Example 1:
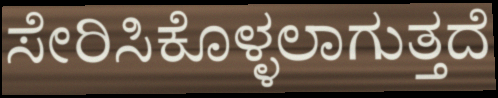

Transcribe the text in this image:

ಸೇರಿಸಿಕೊಳ್ಳಲಾಗುತ್ತದೆ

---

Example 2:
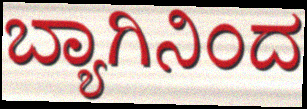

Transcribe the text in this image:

ಬ್ಯಾಗಿನಿಂದ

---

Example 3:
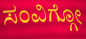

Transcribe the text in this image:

ಸಂವಿಗ್ಗೋ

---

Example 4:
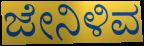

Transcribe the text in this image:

ಜೇನಿಳಿವ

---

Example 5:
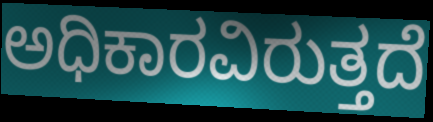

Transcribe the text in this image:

ಅಧಿಕಾರವಿರುತ್ತದೆ